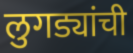
लुगड्यांची